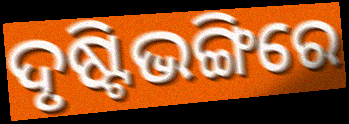
ଦୃଷ୍ଟିଭଙ୍ଗିରେ